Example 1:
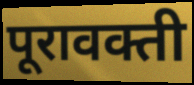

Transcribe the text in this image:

पूरावक्ती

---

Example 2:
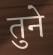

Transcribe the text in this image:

तुने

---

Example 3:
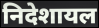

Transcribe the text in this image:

निदेशायल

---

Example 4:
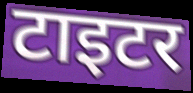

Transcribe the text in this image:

टाइटर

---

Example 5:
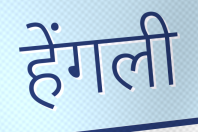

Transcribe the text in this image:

हेंगली